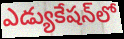
ఎడ్యుకేషన్‌లో